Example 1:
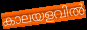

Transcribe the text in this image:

കാലയളവിൽ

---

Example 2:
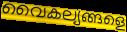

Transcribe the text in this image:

വൈകല്യങ്ങളെ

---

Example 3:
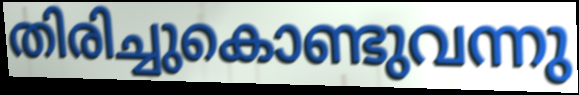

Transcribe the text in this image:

തിരിച്ചുകൊണ്ടുവന്നു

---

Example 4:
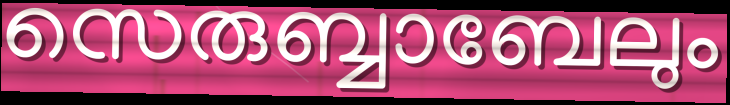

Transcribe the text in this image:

സെരുബ്ബാബേലും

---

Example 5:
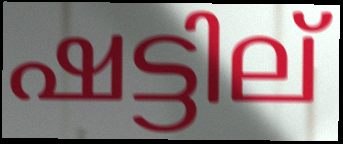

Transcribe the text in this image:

ഷട്ടില്